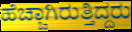
ಹೆಚ್ಚಾಗಿರುತ್ತಿದ್ದರು